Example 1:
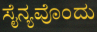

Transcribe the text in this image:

ಸೈನ್ಯವೊಂದು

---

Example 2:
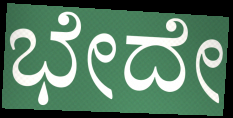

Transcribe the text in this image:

ಭೇದೇ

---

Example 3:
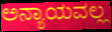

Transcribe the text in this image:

ಅನ್ಯಾಯವಲ್ಲ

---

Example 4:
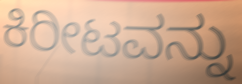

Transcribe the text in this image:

ಕಿರೀಟವನ್ನು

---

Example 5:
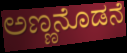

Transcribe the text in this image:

ಅಣ್ಣನೊಡನೆ